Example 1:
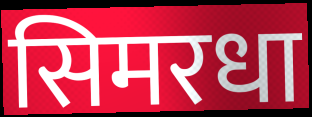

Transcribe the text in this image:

सिमरधा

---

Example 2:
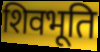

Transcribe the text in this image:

शिवभूति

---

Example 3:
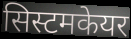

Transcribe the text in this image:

सिस्टमकेयर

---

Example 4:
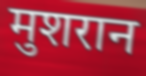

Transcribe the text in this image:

मुशरान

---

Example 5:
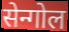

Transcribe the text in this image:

सेन्गोल